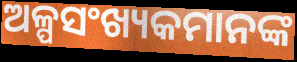
ଅଳ୍ପସଂଖ୍ୟକମାନଙ୍କ